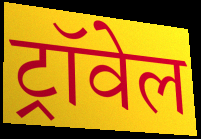
ट्रॉवेल